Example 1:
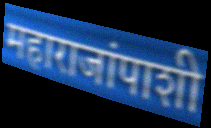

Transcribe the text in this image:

महाराजांपाशी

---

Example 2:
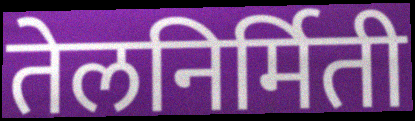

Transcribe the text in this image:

तेलनिर्मिती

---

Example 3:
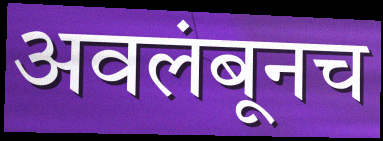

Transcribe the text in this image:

अवलंबूनच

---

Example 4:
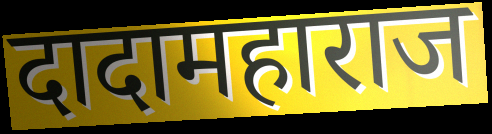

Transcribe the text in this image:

दादामहाराज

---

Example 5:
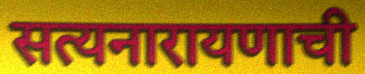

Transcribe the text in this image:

सत्यनारायणाची